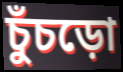
চুঁচড়ো